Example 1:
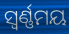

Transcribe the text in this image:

ସ୍ଵର୍ଣ୍ଣମୟ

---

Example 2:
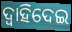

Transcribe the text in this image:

ଦ୍ୱାହିଦେଇ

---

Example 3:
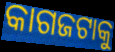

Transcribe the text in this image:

କାଗଜଟାକୁ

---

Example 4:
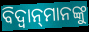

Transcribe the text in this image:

ବିଦ୍ଵାନ୍‌ମାନଙ୍କୁ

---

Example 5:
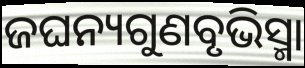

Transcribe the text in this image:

ଜଘନ୍ୟଗୁଣବୃଭିସ୍ମା